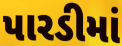
પારડીમાં